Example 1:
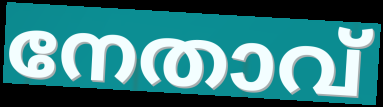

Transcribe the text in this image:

നേതാവ്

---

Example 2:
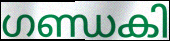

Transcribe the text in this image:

ഗണ്ഡകി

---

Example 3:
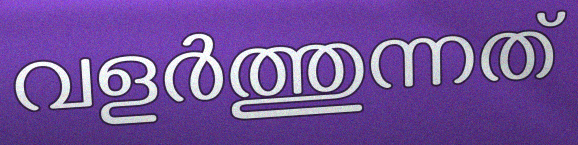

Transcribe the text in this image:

വളർത്തുന്നത്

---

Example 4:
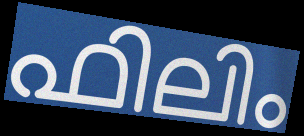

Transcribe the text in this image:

ഫിലിം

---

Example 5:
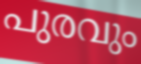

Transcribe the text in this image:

പുരവും